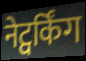
नेट्वर्किंग